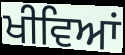
ਖੀਵਿਆਂ